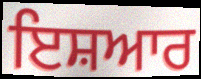
ਇਸ਼ਆਰ